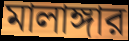
মালাঙ্গার